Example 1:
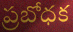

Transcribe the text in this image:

ప్రబోధక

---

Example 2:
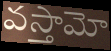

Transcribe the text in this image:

వస్తామో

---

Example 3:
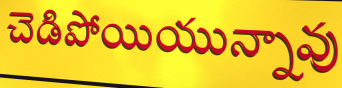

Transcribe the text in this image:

చెడిపోయియున్నావు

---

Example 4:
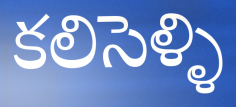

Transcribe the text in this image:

కలిసెళ్ళి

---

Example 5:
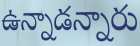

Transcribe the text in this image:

ఉన్నాడన్నారు